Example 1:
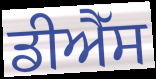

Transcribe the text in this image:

ਡੀਐੱਸ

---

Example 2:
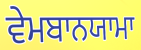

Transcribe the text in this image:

ਵੇਮਬਾਨਯਾਮਾ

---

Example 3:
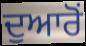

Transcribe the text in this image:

ਦੁਆਰੋਂ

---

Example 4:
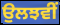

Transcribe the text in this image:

ਉਲਝਵੀਂ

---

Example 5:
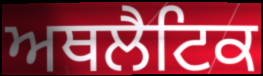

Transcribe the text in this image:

ਅਥਲੈਟਿਕ